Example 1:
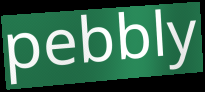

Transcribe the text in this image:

pebbly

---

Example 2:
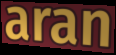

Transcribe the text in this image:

aran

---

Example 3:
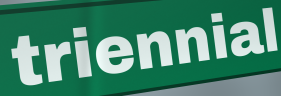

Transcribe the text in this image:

triennial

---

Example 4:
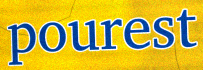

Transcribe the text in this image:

pourest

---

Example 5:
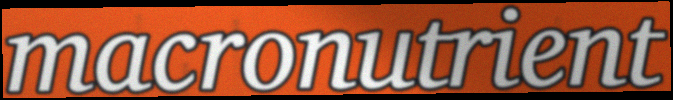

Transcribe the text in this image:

macronutrient